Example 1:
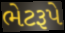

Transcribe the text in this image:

ભેટરૂપે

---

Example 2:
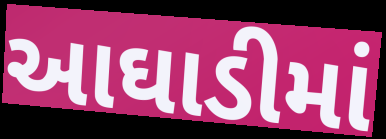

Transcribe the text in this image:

આઘાડીમાં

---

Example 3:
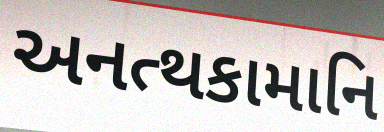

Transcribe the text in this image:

અનત્થકામાનિ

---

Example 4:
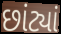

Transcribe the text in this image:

છાંટ્યાં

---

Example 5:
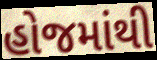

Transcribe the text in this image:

હોજમાંથી